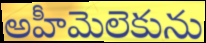
అహీమెలెకును